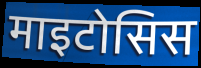
माइटोसिस